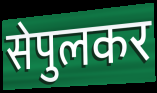
सेपुलकर